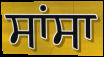
ਸਾਂਸਾ